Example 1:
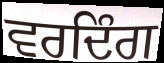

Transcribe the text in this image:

ਵਰਦਿੰਗ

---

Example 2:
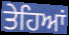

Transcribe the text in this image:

ਤੇਹਿਆਂ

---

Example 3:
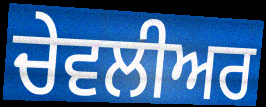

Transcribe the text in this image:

ਚੇਵਲੀਅਰ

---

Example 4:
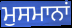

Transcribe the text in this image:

ਮੁਸਮਾਨਾਂ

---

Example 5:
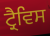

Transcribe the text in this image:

ਟ੍ਰੈਵਿਸ